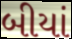
બીયાં